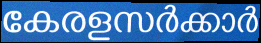
കേരളസർക്കാർ